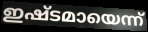
ഇഷ്ടമായെന്ന്